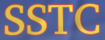
SSTC